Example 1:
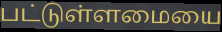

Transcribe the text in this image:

பட்டுள்ளமையை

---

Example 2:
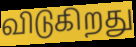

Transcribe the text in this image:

விடுகிறது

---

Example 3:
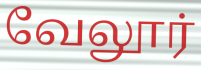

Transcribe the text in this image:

வேலூர்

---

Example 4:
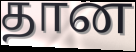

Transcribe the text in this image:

தான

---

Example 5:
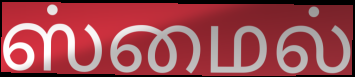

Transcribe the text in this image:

ஸ்மைல்